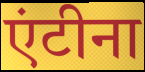
एंटीना